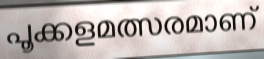
പൂക്കളമത്സരമാണ്